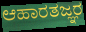
ಆಹಾರತಜ್ಞರ